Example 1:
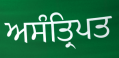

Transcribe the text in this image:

ਅਸੰਤ੍ਰਿਪਤ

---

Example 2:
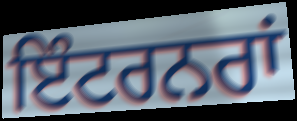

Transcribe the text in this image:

ਇੰਟਰਨਰਾਂ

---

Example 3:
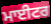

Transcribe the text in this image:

ਮਾਈਟਰ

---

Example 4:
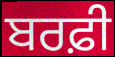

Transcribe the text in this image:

ਬਰਫ਼ੀ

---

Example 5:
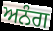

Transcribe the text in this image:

ਅਨੰਗ